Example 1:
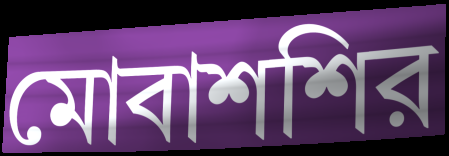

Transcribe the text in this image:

মোবাশশির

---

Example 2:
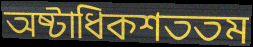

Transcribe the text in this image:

অষ্টাধিকশততম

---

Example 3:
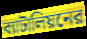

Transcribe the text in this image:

ব্যাটালিয়নের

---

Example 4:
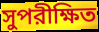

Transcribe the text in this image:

সুপরীক্ষিত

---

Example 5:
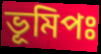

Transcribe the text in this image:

ভূমিপঃ